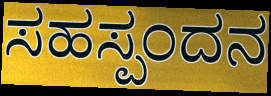
ಸಹಸ್ಪಂದನ